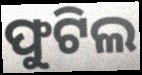
ଫୁଟିଲ